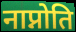
नाप्नोति